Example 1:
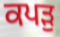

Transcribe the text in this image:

ਕਪੜੁ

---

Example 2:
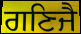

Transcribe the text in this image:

ਗਣਿਜੈ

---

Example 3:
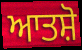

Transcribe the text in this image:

ਆਤਸ਼ੋ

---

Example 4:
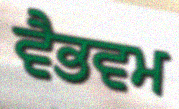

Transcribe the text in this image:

ਵੈਭਵਮ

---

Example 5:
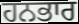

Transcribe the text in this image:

ਹਨਭਾਰ